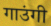
गाउंगी